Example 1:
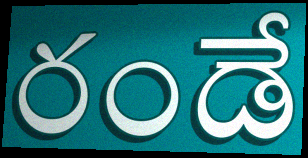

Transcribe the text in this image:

రండే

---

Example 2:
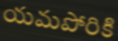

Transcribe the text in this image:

యమపోరికి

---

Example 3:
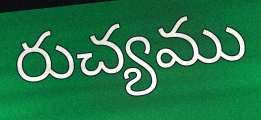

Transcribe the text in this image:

రుచ్యము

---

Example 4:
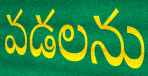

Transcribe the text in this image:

వడలను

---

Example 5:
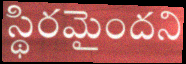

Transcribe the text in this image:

స్థిరమైందని